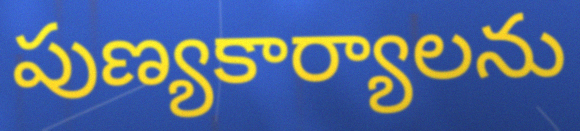
పుణ్యకార్యాలను